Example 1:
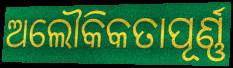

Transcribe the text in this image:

ଅଲୌକିକତାପୂର୍ଣ୍ଣ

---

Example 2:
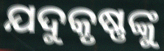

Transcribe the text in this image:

ଯଦୁକୃଷ୍ଣଙ୍କୁ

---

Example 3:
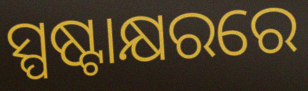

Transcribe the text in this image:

ସ୍ପଷ୍ଟାକ୍ଷରରେ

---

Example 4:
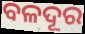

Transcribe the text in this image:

ବଳଦୂର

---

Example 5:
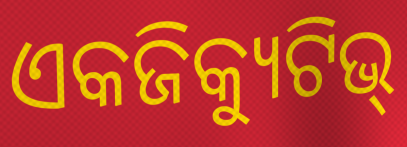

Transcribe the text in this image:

ଏକଜିକ୍ୟୁଟିଭ୍